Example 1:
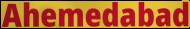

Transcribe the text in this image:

Ahemedabad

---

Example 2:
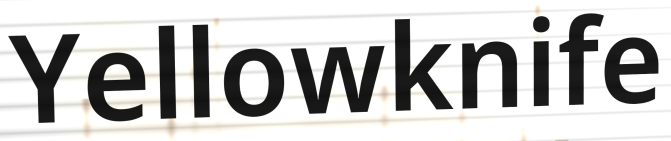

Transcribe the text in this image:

Yellowknife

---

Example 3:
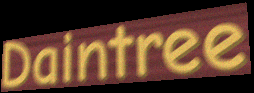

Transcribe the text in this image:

Daintree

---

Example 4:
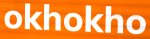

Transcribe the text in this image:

okhokho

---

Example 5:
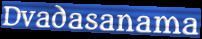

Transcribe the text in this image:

Dvadasanama